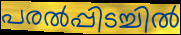
പരൽപ്പിടച്ചിൽ